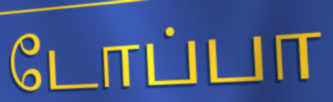
டோப்பா